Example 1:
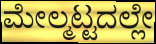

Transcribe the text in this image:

ಮೇಲ್ಮಟ್ಟದಲ್ಲೇ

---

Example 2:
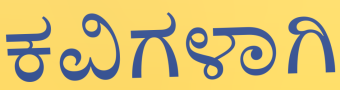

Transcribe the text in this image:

ಕವಿಗಳಾಗಿ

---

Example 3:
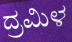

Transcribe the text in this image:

ದ್ರಮಿಳ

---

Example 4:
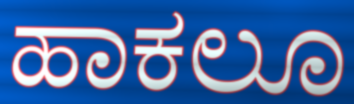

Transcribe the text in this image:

ಹಾಕಲೂ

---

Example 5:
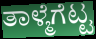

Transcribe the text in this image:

ತಾಳ್ಮೆಗೆಟ್ಟ